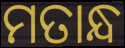
ମତାନ୍ଧ